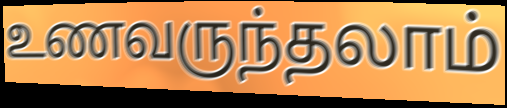
உணவருந்தலாம்